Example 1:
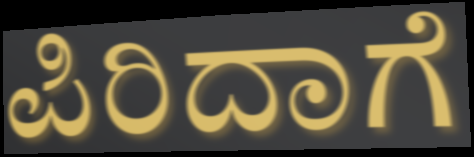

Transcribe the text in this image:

ಪಿರಿದಾಗೆ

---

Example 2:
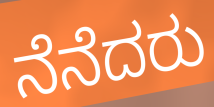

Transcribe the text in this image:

ನೆನೆದರು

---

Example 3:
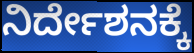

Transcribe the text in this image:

ನಿರ್ದೇಶನಕ್ಕೆ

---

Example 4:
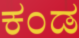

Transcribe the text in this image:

ಕಂಡ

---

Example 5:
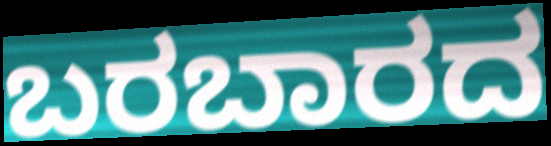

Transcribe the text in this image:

ಬರಬಾರದ